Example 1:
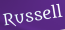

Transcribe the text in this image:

Russell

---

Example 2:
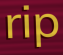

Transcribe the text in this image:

rip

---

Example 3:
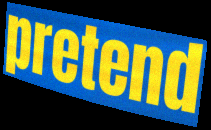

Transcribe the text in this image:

pretend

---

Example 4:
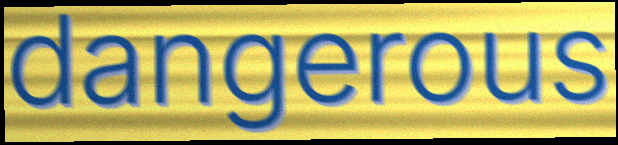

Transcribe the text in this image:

dangerous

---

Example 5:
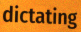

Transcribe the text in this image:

dictating